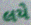
લયે